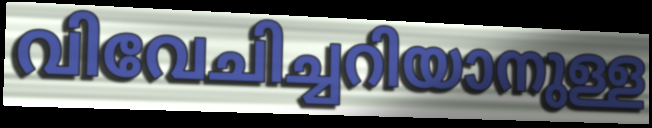
വിവേചിച്ചറിയാനുള്ള